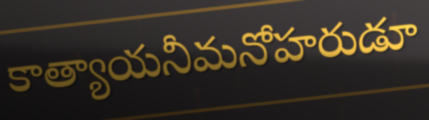
కాత్యాయనీమనోహరుడూ